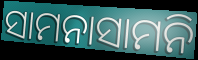
ସାମନାସାମନି